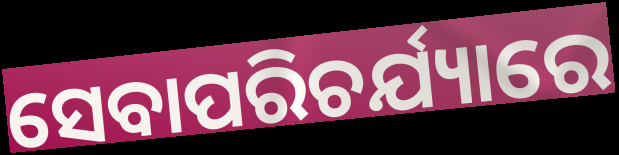
ସେବାପରିଚର୍ଯ୍ୟାରେ